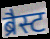
ब्रैस्ट